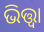
ଭିତ୍ତ୍ୱା